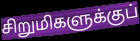
சிறுமிகளுக்குப்